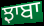
ਝਾਬਾ